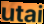
utai